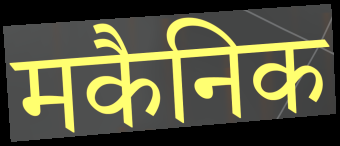
मकैनिक